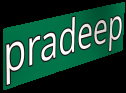
pradeep